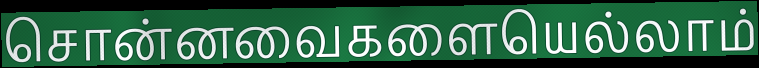
சொன்னவைகளையெல்லாம்